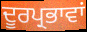
ਦੂਰਪ੍ਰਭਾਵਾਂ